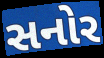
સનોર